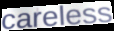
careless